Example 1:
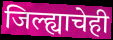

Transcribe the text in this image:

जिल्ह्याचेही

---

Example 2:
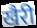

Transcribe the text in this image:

खैरी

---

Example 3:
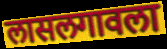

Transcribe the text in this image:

लासलगावला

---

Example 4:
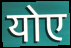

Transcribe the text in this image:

योए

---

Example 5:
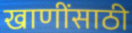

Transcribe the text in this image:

खाणींसाठी